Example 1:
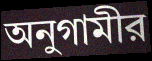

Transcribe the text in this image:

অনুগামীর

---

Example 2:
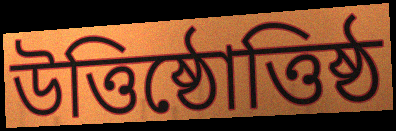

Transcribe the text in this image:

উত্তিষ্ঠোত্তিষ্ঠ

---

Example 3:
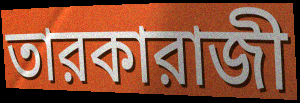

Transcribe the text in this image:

তারকারাজী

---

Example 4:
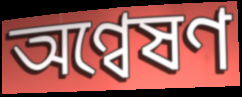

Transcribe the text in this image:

অণ্বেষণ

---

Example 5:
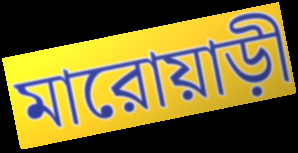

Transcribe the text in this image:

মারোয়াড়ী